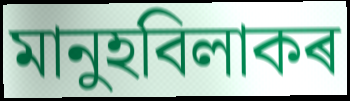
মানুহবিলাকৰ